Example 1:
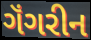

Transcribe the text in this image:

ગૅંગરીન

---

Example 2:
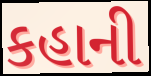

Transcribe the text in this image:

કહાની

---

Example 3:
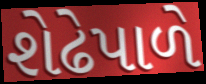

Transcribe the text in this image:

શેઢેપાળે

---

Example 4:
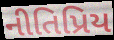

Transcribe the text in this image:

નીતિપ્રિય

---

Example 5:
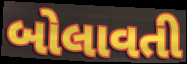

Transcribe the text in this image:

બોલાવતી